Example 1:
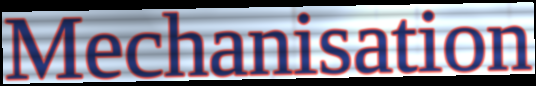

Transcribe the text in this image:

Mechanisation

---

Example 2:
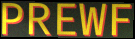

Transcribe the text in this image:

PREWF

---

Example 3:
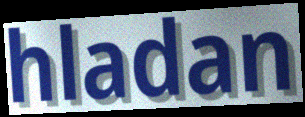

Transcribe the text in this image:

hladan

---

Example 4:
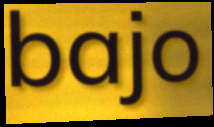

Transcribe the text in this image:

bajo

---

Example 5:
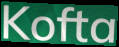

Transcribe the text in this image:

Kofta